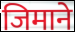
जिमाने